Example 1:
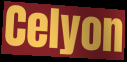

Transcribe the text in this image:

Celyon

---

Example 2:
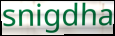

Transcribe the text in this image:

snigdha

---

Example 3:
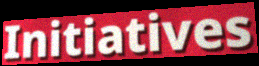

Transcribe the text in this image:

Initiatives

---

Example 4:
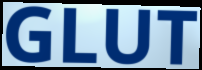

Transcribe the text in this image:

GLUT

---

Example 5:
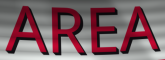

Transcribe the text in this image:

AREA